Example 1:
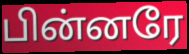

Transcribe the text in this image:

பின்னரே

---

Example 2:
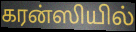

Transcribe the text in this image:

கரன்ஸியில்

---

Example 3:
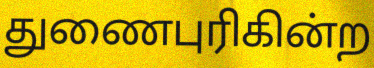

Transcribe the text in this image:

துணைபுரிகின்ற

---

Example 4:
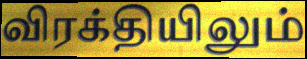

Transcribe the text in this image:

விரக்தியிலும்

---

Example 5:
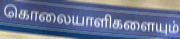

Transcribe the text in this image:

கொலையாளிகளையும்